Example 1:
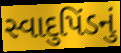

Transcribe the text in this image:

સ્વાદુપિંડનું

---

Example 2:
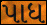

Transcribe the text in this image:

પાધ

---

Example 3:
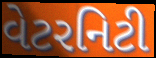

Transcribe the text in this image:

વેટરનિટી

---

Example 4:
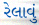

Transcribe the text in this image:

રેલાવું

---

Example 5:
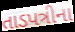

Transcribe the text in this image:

તાડપત્રીના